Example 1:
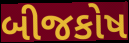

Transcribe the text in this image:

બીજકોષ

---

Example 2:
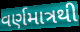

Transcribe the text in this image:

વર્ણમાત્રથી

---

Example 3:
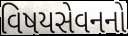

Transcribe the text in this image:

વિષયસેવનનો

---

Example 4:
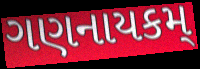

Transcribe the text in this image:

ગણનાયકમ્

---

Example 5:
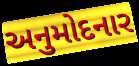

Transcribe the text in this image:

અનુમોદનાર